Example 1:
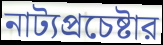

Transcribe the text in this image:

নাট্যপ্রচেষ্টার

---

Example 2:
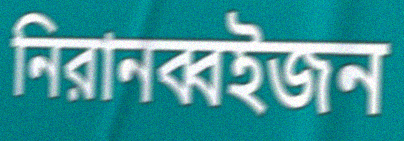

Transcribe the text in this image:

নিরানব্বইজন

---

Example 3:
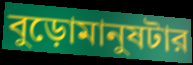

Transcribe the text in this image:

বুড়োমানুষটার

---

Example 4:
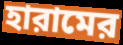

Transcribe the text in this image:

হারামের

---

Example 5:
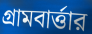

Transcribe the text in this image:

গ্রামবার্ত্তার